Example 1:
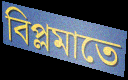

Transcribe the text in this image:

বিপ্লমাতে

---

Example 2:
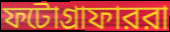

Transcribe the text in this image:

ফটোগ্রাফাররা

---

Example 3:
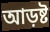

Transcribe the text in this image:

আড়ষ্ট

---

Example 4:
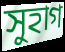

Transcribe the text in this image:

সুহাগ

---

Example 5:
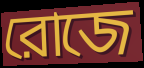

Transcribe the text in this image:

রোজে